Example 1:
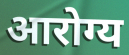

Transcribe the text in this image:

आरोग्य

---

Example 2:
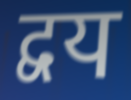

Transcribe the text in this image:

द्वय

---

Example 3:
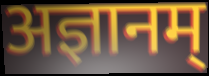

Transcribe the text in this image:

अज्ञानम्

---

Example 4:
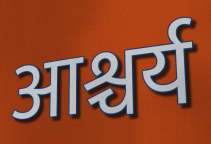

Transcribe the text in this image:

आश्चर्य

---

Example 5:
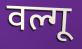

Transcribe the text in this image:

वल्गू